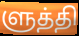
ளுத்தி